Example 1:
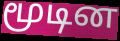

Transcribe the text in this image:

மூடின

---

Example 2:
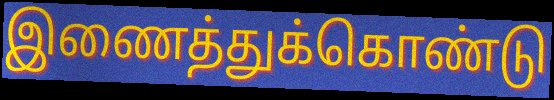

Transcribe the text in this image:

இணைத்துக்கொண்டு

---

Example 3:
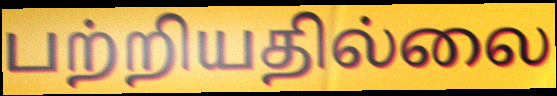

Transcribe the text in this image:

பற்றியதில்லை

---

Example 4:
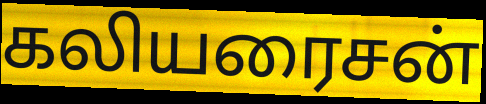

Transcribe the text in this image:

கலியரைசன்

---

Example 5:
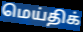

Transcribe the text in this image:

மெய்திக்